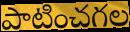
పాటించగల